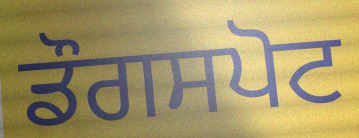
ਡੌਗਸਪੋਟ